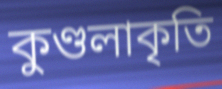
কুণ্ডলাকৃতি